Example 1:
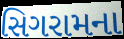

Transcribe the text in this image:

સિગરામના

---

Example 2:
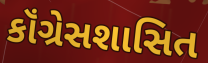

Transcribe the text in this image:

કૉંગ્રેસશાસિત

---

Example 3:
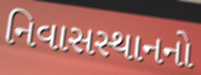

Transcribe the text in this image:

નિવાસસ્થાનનો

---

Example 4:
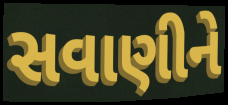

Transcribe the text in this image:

સવાણીને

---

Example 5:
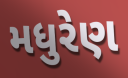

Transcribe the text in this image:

મધુરેણ